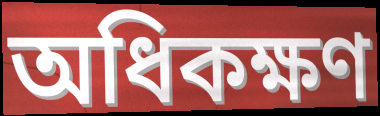
অধিকক্ষণ